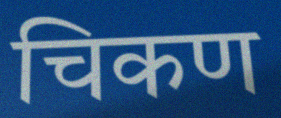
चिकण